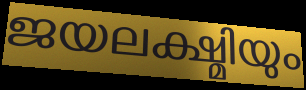
ജയലക്ഷ്മിയും